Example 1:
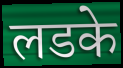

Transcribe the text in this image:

लडके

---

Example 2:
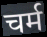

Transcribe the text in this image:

चर्म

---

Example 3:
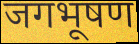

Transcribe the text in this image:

जगभूषण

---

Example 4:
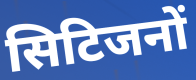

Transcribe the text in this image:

सिटिजनों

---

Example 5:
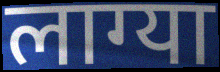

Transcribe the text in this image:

लाग्या